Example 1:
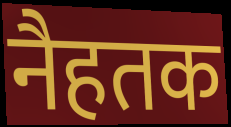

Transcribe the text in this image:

नैहतक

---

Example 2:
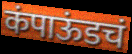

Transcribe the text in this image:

कंपाऊंडचं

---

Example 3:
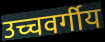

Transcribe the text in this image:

उच्चवर्गीय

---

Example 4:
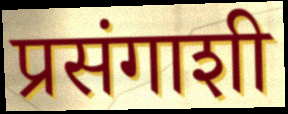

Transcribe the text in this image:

प्रसंगाशी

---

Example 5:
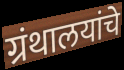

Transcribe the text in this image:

ग्रंथालयांचे